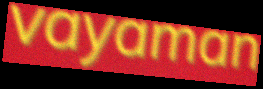
vayaman